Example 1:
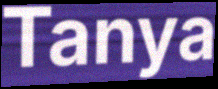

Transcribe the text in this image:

Tanya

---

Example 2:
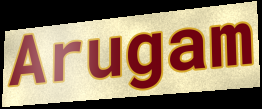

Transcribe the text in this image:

Arugam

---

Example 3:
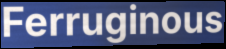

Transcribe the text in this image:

Ferruginous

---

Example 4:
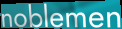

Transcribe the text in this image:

noblemen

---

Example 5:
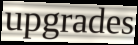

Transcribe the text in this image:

upgrades